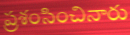
ప్రశంసించినారు